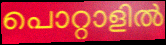
പൊറ്റാളിൽ